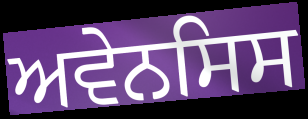
ਅਵੇਨਸਿਸ